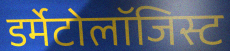
डर्मेटोलॉजिस्ट